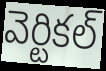
వెర్టికల్